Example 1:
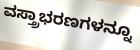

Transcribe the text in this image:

ವಸ್ತ್ರಾಭರಣಗಳನ್ನೂ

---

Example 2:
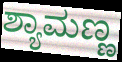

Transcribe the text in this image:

ಶ್ಯಾಮಣ್ಣ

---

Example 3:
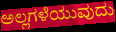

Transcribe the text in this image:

ಅಲ್ಲಗಳೆಯುವುದು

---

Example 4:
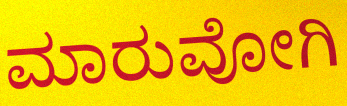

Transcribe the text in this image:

ಮಾರುವೋಗಿ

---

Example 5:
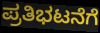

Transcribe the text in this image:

ಪ್ರತಿಭಟನೆಗೆ